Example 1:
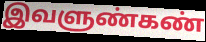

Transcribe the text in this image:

இவளுண்கண்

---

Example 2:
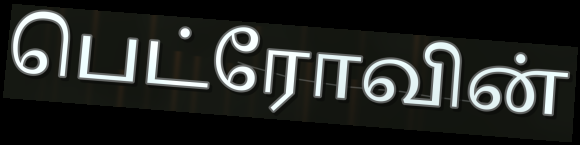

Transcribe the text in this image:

பெட்ரோவின்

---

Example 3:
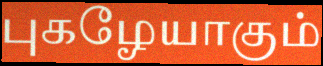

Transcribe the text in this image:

புகழேயாகும்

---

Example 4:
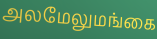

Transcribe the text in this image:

அலமேலுமங்கை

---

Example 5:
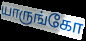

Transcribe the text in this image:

யாருங்கோ